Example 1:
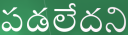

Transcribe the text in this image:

పడలేదని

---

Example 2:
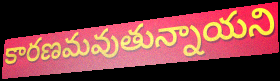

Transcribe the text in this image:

కారణమవుతున్నాయని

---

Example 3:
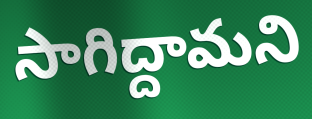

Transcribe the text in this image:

సాగిద్దామని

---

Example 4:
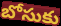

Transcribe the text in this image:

బోసుకు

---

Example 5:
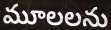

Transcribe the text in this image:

మూలలను